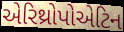
એરિથ્રોપોએટિન